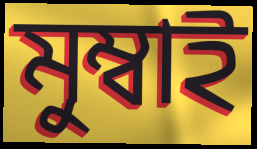
মুম্বাই